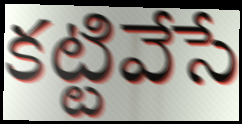
కట్టివేసే